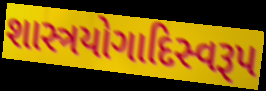
શાસ્ત્રયોગાદિસ્વરૂપ